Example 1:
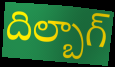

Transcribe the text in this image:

దిల్బాగ్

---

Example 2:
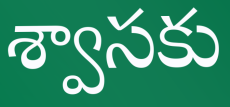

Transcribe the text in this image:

శ్వాసకు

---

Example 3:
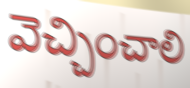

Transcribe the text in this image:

వెచ్చించాలి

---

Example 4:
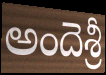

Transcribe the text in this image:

అందెశ్రీ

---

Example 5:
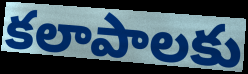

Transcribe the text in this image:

కలాపాలకు